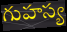
గుహస్య